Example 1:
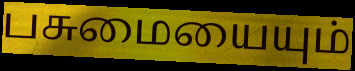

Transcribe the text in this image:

பசுமையையும்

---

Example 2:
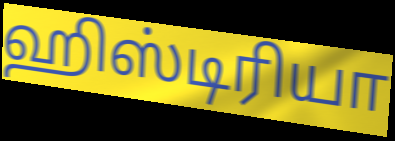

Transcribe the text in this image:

ஹிஸ்டிரியா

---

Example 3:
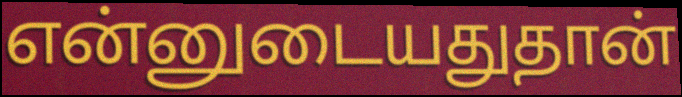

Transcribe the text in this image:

என்னுடையதுதான்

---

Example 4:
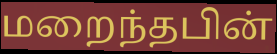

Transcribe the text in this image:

மறைந்தபின்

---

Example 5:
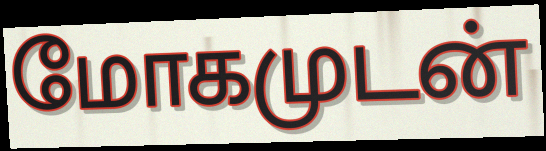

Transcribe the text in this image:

மோகமுடன்